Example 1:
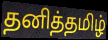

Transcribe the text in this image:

தனித்தமிழ்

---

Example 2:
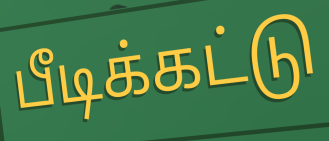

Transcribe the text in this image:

பீடிக்கட்டு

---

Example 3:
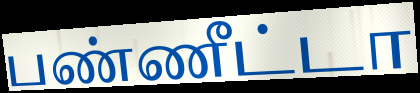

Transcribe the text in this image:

பண்ணீட்டா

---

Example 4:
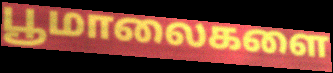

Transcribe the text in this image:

பூமாலைகளை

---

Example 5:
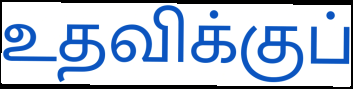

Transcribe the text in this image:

உதவிக்குப்